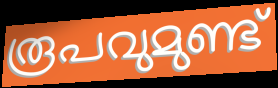
രൂപവുമുണ്ട്